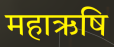
महाऋषि